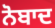
ਨੋਬਾਦ